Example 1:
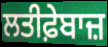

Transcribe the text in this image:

ਲਤੀਫ਼ੇਬਾਜ਼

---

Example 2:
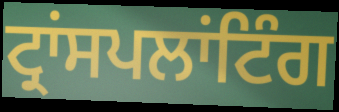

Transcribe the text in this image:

ਟ੍ਰਾਂਸਪਲਾਂਟਿੰਗ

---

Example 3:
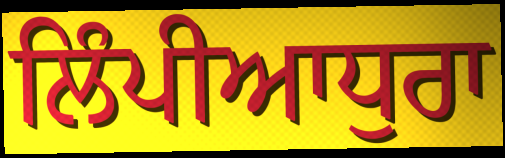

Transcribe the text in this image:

ਲਿੰਪੀਆਧੁਰਾ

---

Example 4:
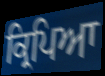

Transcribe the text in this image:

ਕ੍ਰਿਪਿਆ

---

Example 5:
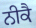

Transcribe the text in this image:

ਨੀਕੈ